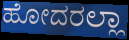
ಹೋದರಲ್ಲಾ